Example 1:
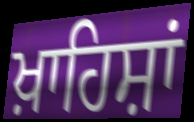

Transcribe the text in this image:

ਖ਼ਾਹਿਸ਼ਾਂ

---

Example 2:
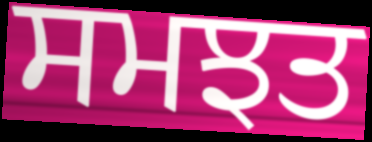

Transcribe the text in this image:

ਸਮਝਤ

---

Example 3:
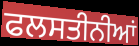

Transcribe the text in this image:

ਫਲਸਤੀਨੀਆਂ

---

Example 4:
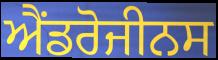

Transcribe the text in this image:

ਐਂਡਰੋਜੀਨਸ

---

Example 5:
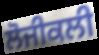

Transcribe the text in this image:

ਲੋਜੀਕਲੀ